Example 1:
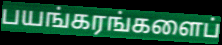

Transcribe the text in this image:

பயங்கரங்களைப்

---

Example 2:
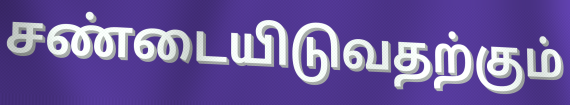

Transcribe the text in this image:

சண்டையிடுவதற்கும்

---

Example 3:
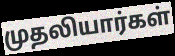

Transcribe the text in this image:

முதலியார்கள்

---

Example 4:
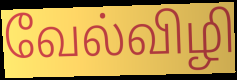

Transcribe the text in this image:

வேல்விழி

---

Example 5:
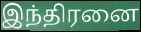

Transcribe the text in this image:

இந்திரனை